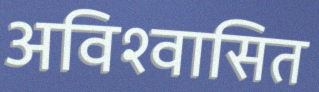
अविश्वासित